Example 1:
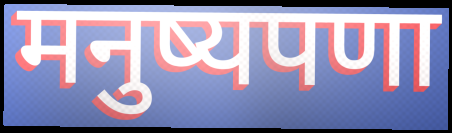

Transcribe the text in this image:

मनुष्यपणा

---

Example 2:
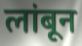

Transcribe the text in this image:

लांबून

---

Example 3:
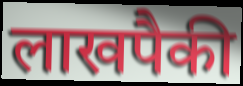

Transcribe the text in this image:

लाखपैकी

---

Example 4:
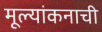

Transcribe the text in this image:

मूल्यांकनाची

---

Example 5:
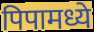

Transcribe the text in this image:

पिपामध्ये